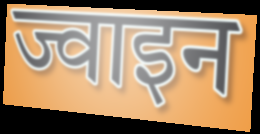
ज्‍वाइन